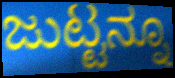
ಜುಟ್ಟನ್ನೂ